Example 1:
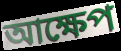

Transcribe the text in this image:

আক্ষেপ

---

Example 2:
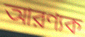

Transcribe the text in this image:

আরণ্যক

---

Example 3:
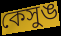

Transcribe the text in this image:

কেসুঙ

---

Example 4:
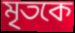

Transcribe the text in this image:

মৃতকে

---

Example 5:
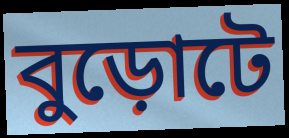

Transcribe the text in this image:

বুড়োটে